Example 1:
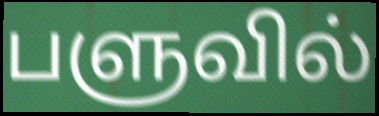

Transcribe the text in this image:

பளுவில்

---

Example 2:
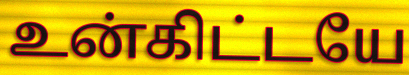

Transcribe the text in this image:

உன்கிட்டயே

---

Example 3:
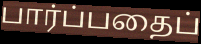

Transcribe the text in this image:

பார்ப்பதைப்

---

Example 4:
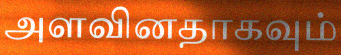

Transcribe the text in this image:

அளவினதாகவும்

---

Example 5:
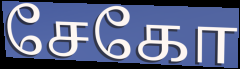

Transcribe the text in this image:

சேகோ